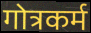
गोत्रकर्म